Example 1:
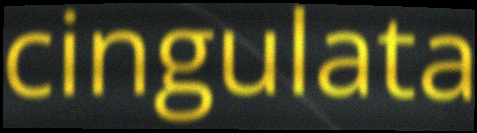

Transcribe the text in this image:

cingulata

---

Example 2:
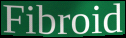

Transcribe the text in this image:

Fibroid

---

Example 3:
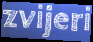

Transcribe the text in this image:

zvijeri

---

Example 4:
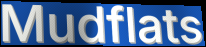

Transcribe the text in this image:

Mudflats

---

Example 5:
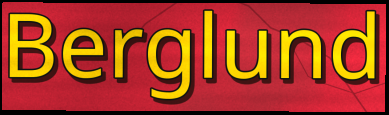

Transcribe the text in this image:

Berglund